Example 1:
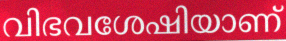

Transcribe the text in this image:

വിഭവശേഷിയാണ്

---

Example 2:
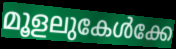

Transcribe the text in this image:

മൂളലുകേൾക്കേ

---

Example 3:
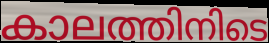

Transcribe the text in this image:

കാലത്തിനിടെ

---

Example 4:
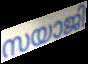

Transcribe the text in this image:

സയാജി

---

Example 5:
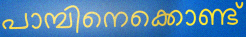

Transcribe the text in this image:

പാമ്പിനെക്കൊണ്ട്